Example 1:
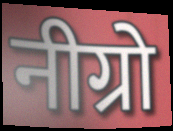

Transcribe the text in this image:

नीग्रो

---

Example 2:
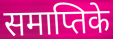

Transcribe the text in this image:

समाप्तिके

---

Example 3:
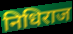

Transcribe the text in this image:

निधिराज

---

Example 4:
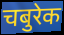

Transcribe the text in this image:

चबुरेक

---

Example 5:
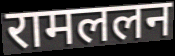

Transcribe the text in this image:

रामललन